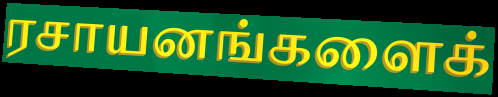
ரசாயனங்களைக்